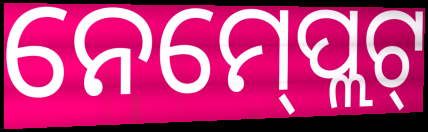
ନେମ୍‍ପ୍ଲେଟ୍